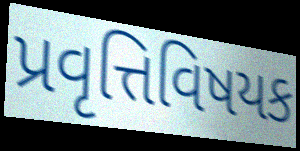
પ્રવૃત્તિવિષયક